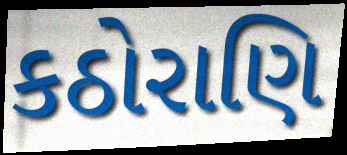
કઠોરાણિ